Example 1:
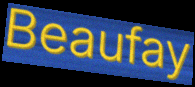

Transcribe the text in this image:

Beaufay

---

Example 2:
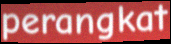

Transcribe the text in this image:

perangkat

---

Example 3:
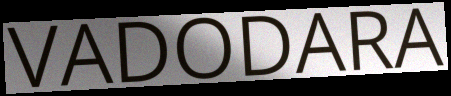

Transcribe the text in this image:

VADODARA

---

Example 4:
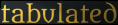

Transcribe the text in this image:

tabulated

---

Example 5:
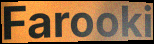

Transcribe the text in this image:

Farooki